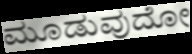
ಮೂಡುವುದೋ